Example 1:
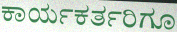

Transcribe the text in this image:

ಕಾರ್ಯಕರ್ತರಿಗೂ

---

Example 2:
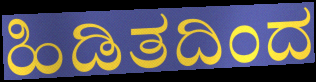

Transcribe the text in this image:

ಹಿಡಿತದಿಂದ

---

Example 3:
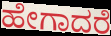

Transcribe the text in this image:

ಹೇಗಾದರೆ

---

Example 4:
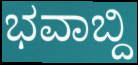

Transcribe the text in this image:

ಭವಾಬ್ದಿ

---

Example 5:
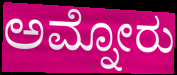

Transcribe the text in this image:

ಅಮ್ನೋರು